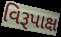
વિરૂપાક્ષ